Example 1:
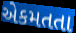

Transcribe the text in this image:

એકમતતા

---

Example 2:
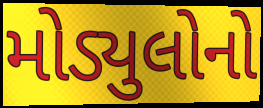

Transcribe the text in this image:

મોડ્યુલોનો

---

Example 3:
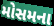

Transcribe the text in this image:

મોસમના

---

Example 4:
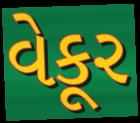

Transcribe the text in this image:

વેકૂર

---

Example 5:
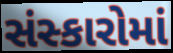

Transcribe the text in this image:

સંસ્કારોમાં